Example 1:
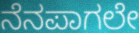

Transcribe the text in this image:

ನೆನಪಾಗಲೇ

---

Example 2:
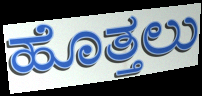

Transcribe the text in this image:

ಹೊತ್ತಲು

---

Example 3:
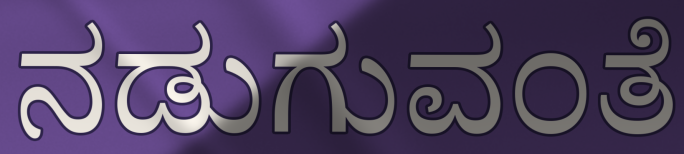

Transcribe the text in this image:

ನಡುಗುವಂತೆ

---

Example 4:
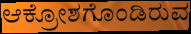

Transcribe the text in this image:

ಆಕ್ರೋಶಗೊಂಡಿರುವ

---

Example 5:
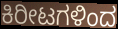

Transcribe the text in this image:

ಕಿರೀಟಗಳಿಂದ